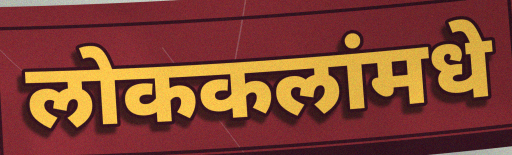
लोककलांमधे